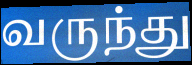
வருந்து